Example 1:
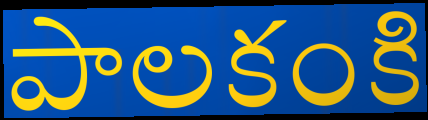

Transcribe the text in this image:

పాలకంకి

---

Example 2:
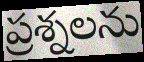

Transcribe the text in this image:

ప్రశ్నలను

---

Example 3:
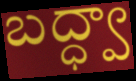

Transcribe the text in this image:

బద్ధ్వా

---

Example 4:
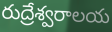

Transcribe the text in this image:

రుద్రేశ్వరాలయ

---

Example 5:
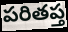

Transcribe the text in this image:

పరితప్త